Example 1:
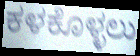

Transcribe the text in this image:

ಕಳಕೊಳ್ಳಲು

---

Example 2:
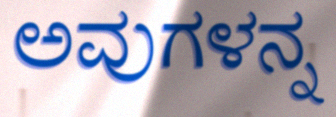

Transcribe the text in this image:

ಅವುಗಳನ್ನ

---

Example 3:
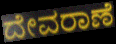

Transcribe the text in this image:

ದೇವರಾಣೆ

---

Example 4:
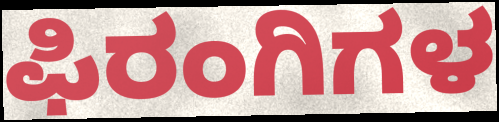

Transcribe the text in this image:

ಫಿರಂಗಿಗಳ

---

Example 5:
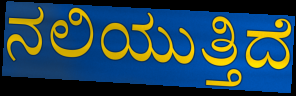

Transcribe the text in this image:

ನಲಿಯುತ್ತಿದೆ